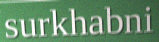
surkhabni